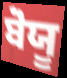
ਬੋਯੂ